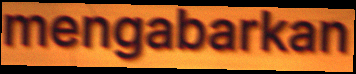
mengabarkan